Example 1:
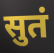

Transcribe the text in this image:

सुतं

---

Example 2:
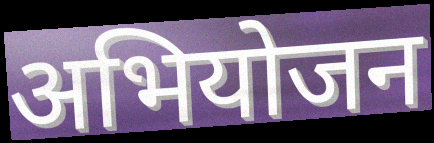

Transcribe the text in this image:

अभियोजन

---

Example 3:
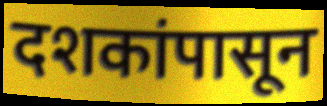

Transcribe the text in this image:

दशकांपासून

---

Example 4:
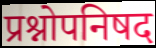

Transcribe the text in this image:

प्रश्नोपनिषद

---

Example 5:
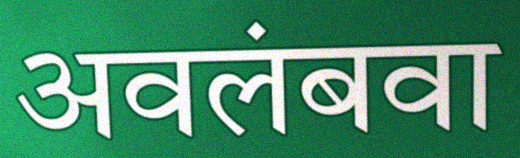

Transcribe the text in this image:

अवलंबवा